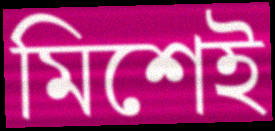
মিশেই